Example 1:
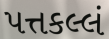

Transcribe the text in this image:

પત્તકલ્લં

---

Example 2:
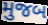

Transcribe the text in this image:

મુજબ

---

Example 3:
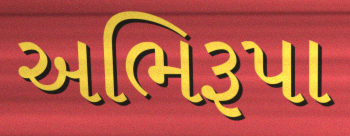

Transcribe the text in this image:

અભિરૂપા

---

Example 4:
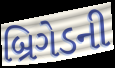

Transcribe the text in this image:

બ્રિગેડની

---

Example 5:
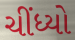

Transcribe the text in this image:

ચીંધ્યો